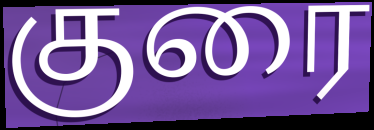
குரை